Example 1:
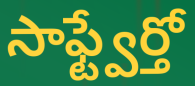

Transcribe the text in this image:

సాఫ్ట్వేర్తో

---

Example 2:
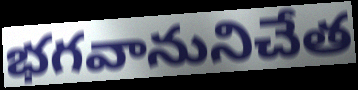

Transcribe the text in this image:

భగవానునిచేత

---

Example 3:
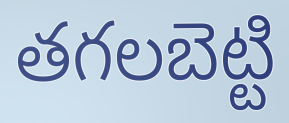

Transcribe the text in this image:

తగలబెట్టి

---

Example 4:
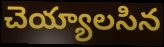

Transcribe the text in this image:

చెయ్యాలసిన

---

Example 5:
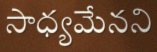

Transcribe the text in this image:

సాధ్యమేనని